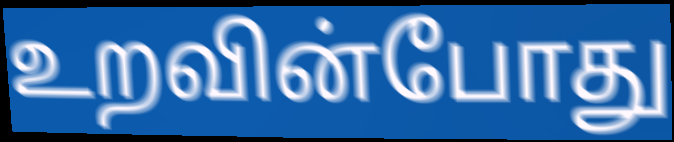
உறவின்போது